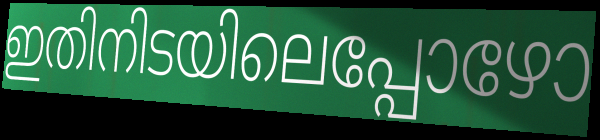
ഇതിനിടയിലെപ്പോഴോ